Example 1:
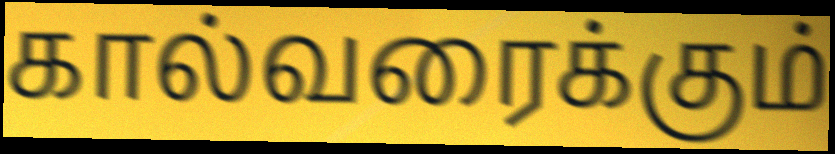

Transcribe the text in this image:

கால்வரைக்கும்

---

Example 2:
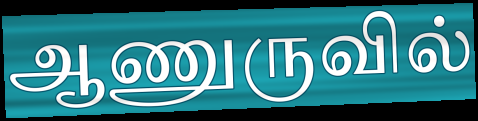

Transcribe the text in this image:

ஆணுருவில்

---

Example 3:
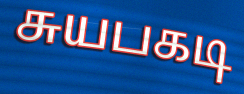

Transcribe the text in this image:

சுயபகடி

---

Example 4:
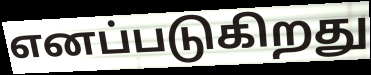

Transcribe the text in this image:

எனப்படுகிறது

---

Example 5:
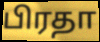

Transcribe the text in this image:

பிரதா